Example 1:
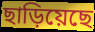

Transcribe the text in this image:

ছাড়িয়েছে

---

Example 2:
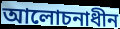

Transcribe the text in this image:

আলোচনাধীন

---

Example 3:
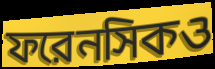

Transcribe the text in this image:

ফরেনসিকও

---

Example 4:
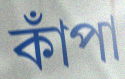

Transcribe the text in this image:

কাঁপা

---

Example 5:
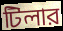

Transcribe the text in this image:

টিলার